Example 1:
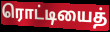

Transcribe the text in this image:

ரொட்டியைத்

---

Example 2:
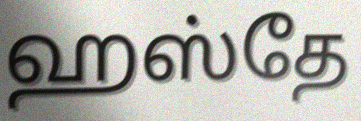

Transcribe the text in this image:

ஹஸ்தே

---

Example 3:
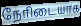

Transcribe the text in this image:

நேரிடையாக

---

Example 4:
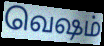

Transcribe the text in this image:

வெஷம்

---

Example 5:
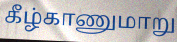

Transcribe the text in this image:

கீழ்காணுமாறு